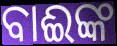
ବାଈଙ୍କ